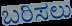
ಬರಿಸಲು